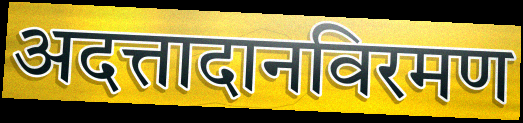
अदत्तादानविरमण